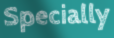
Specially